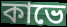
কাভে